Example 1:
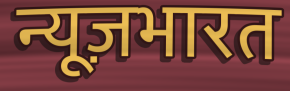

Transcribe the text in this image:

न्यूज़भारत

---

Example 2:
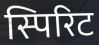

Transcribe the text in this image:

स्पिरिट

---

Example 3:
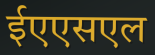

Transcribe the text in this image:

ईएएसएल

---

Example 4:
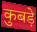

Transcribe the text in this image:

कुबड़े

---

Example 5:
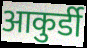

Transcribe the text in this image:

आकुर्डी